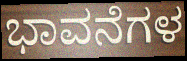
ಭಾವನೆಗಳ